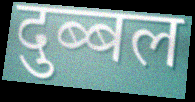
दुब्बल